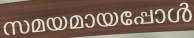
സമയമായപ്പോൾ